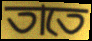
তাতে